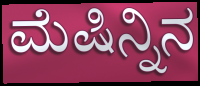
ಮೆಷಿನ್ನಿನ